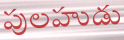
పులహుడు